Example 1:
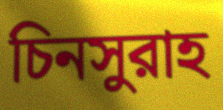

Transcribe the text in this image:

চিনসুরাহ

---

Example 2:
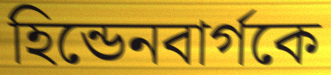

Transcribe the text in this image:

হিন্ডেনবার্গকে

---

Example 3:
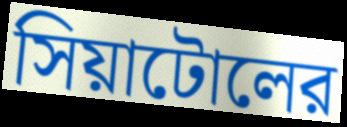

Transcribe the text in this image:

সিয়াটোলের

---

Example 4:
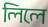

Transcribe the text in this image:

লিলে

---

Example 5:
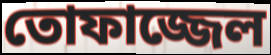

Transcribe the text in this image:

তোফাজ্জেল